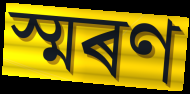
স্মৰণ